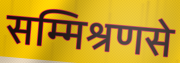
सम्मिश्रणसे